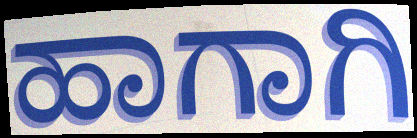
ಹಾಗಾಗಿ